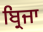
ਬ੍ਰਿਜਾ